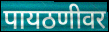
पायठणीवर